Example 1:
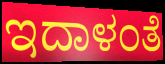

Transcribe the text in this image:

ಇದಾಳಂತೆ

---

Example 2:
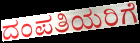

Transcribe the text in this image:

ದಂಪತಿಯರಿಗೆ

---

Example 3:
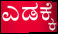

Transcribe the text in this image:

ಎಡಕ್ಕೆ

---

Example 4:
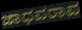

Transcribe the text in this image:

ಜಾಧವರಾವ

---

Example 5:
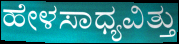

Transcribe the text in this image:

ಹೇಳಸಾಧ್ಯವಿತ್ತು